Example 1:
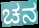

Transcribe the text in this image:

ಚನ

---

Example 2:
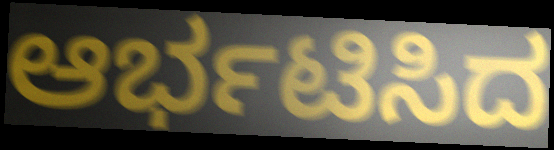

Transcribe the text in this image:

ಆರ್ಭಟಿಸಿದ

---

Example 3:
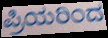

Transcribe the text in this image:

ಪ್ರಿಯರಿಂದ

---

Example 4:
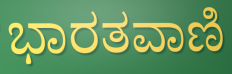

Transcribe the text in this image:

ಭಾರತವಾಣಿ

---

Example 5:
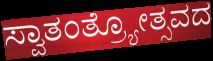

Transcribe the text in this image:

ಸ್ವಾತಂತ್ರ್ಯೋತ್ಸವದ